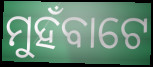
ମୁହଁବାଟେ